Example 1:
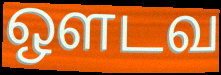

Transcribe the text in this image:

ஔடவ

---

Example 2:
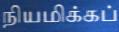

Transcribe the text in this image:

நியமிக்கப்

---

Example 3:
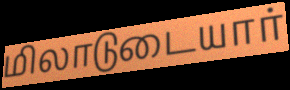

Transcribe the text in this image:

மிலாடுடையார்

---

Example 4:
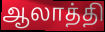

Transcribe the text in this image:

ஆலாத்தி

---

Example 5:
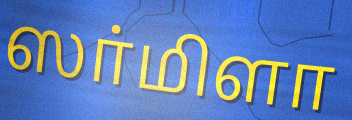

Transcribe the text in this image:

ஸர்மிளா